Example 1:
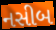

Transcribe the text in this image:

નસીબ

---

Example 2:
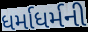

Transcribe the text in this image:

ધર્માધર્મની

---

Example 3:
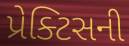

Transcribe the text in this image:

પ્રેક્ટિસની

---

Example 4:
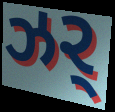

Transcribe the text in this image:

ઝર્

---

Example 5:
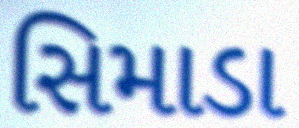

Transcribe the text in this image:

સિમાડા